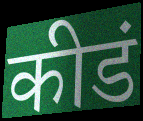
कीडं